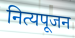
नित्यपूजन